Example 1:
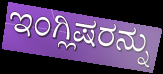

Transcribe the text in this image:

ಇಂಗ್ಲಿಷರನ್ನು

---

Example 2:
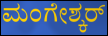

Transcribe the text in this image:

ಮಂಗೇಶ್ಕರ್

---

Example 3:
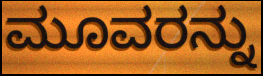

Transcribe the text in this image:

ಮೂವರನ್ನು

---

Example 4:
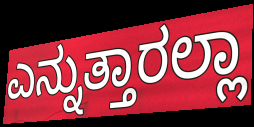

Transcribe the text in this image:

ಎನ್ನುತ್ತಾರಲ್ಲಾ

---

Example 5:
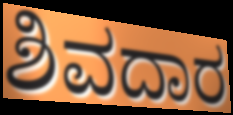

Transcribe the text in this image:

ಶಿವದಾರ